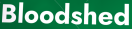
Bloodshed